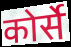
कोर्से